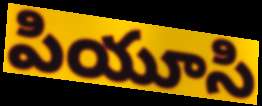
పియూసి